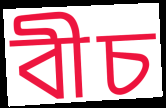
বীচ